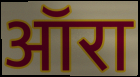
ऑरा